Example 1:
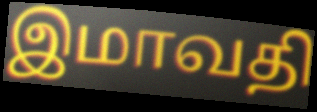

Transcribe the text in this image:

இமாவதி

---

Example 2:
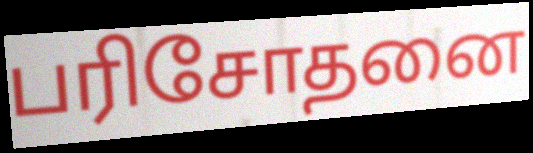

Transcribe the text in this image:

பரிசோதனை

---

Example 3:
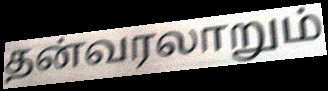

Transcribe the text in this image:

தன்வரலாறும்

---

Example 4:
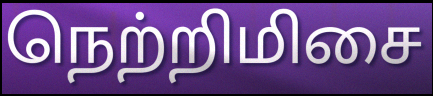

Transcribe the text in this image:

நெற்றிமிசை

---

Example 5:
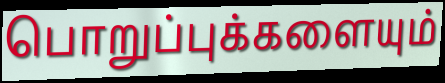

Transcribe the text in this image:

பொறுப்புக்களையும்